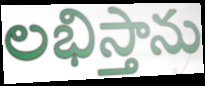
లభిస్తాను